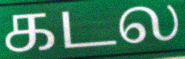
கடல